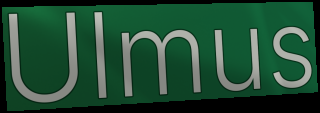
Ulmus